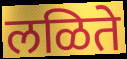
लळिते